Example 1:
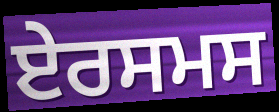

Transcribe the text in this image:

ਏਰਸਮਸ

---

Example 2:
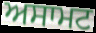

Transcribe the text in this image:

ਅਸਾਮਟ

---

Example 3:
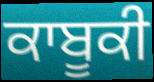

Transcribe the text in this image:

ਕਾਬੂਕੀ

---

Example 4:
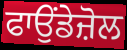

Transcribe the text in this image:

ਫਾਉਂਡੇਜ਼ੋਲ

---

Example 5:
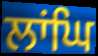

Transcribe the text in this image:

ਲਾਂਘਿ